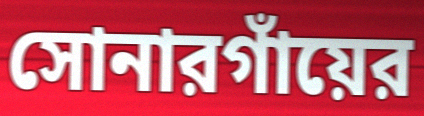
সোনারগাঁয়ের